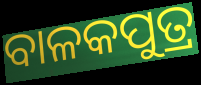
ବାଳକପୁତ୍ର